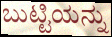
ಬುಟ್ಟಿಯನ್ನು